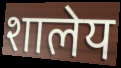
शालेय